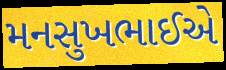
મનસુખભાઈએ